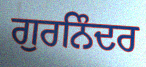
ਗੁਰਨਿੰਦਰ